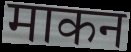
माकन